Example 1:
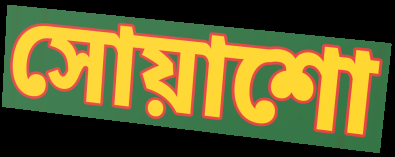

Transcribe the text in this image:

সোয়াশো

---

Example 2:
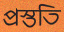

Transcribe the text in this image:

প্রস্ততি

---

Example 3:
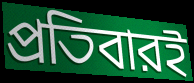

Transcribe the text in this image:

প্রতিবারই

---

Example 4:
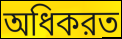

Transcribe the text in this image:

অধিকরত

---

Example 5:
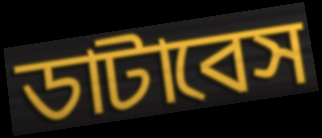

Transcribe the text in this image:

ডাটাবেস